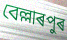
বেল্লাৰপুৰ